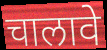
चालावे